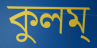
কুলম্